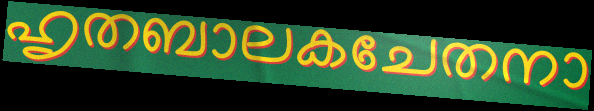
ഹൃതബാലകചേതനാ